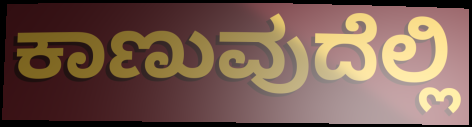
ಕಾಣುವುದೆಲ್ಲಿ